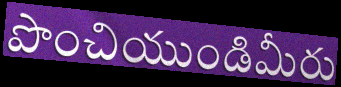
పొంచియుండిమీరు